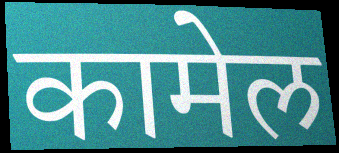
कामेल